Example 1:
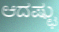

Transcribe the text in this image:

ಆದಷ್ಟು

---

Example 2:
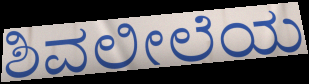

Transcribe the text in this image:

ಶಿವಲೀಲೆಯ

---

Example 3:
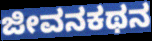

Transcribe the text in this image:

ಜೀವನಕಥನ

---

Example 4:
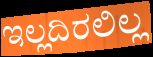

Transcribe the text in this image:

ಇಲ್ಲದಿರಲಿಲ್ಲ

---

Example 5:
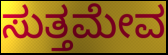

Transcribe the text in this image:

ಸುತ್ತಮೇವ